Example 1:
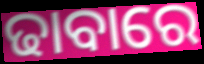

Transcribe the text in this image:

ଢାବାରେ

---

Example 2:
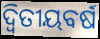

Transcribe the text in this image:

ଦ୍ୱିତୀୟବର୍ଷ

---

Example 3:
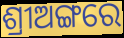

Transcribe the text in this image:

ଶ୍ରୀଅଙ୍ଗରେ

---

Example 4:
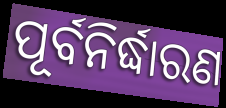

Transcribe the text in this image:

ପୂର୍ବନିର୍ଦ୍ଧାରଣ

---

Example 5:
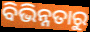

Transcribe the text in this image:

ବିଭିନ୍ନତାରୁ